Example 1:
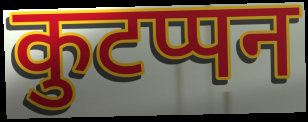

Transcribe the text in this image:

कुटप्पन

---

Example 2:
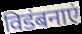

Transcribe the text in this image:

विडंबनाएं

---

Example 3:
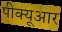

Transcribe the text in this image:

पीक्यूआर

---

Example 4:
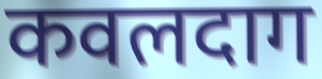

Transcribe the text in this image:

कवलदाग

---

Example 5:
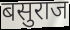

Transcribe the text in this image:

बसुराज